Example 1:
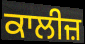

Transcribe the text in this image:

ਕਾਲੀਜ਼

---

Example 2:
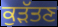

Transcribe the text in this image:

ਕੁੜੱਤਣ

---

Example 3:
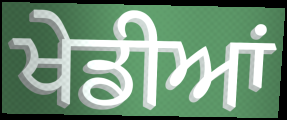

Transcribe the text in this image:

ਖੇਡੀਆਂ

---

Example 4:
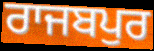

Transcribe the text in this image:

ਰਾਜਬਪੁਰ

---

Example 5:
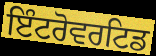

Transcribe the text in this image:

ਇੰਟਰੋਵਰਟਿਡ